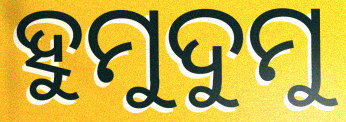
ହୁମୁଦୁମୁ